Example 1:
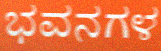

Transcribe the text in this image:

ಭವನಗಳ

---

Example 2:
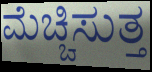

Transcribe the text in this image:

ಮೆಚ್ಚಿಸುತ್ತ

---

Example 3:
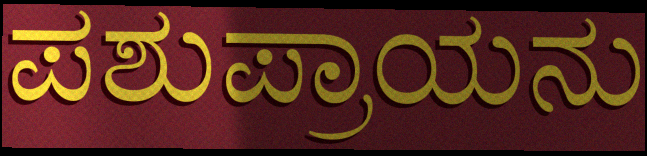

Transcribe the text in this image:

ಪಶುಪ್ರಾಯನು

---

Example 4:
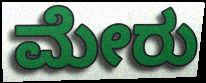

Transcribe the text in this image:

ಮೇರು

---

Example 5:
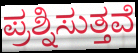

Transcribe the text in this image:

ಪ್ರಶ್ನಿಸುತ್ತವೆ